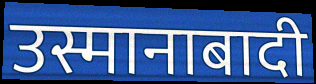
उस्मानाबादी